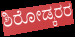
ಶಿರೋಡ್ಕರರ